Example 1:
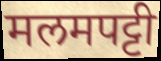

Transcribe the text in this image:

मलमपट्टी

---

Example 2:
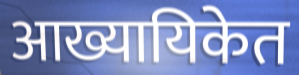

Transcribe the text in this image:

आख्यायिकेत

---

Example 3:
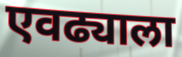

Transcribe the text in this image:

एवढ्याला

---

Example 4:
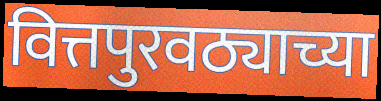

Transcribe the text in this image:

वित्तपुरवठ्याच्या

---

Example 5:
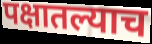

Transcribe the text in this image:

पक्षातल्याच